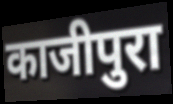
काजीपुरा